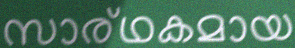
സാര്ഥകമായ